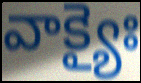
వాక్యైః